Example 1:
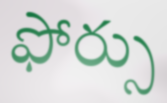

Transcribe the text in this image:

ఫోర్సు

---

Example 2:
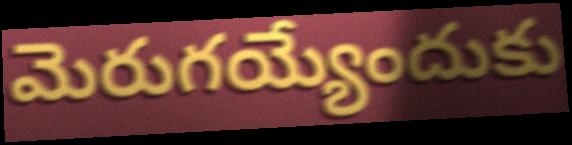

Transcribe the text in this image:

మెరుగయ్యేందుకు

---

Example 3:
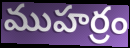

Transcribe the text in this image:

ముహర్రం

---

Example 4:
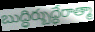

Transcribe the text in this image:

బుద్ధిర్బుద్ధేరాత్మా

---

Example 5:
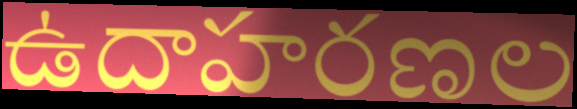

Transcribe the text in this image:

ఉదాహరణల